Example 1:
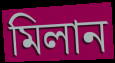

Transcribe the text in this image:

মিলান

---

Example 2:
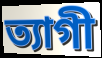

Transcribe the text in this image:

ত্যাগী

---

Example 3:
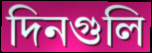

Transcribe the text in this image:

দিনগুলি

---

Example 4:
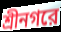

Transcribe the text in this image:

শ্রীনগরে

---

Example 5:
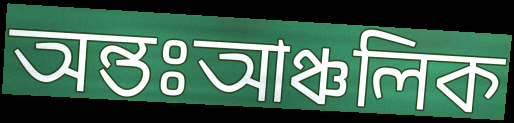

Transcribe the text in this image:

অন্তঃআঞ্চলিক